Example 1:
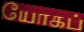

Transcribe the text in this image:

யோகப்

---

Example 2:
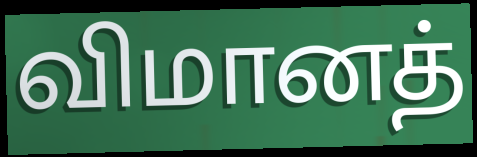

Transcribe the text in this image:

விமானத்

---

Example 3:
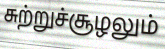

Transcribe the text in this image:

சுற்றுச்சூழலும்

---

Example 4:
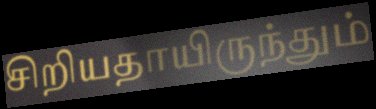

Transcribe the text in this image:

சிறியதாயிருந்தும்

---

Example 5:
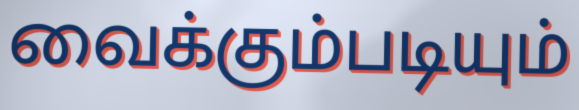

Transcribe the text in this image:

வைக்கும்படியும்